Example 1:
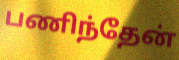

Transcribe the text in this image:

பணிந்தேன்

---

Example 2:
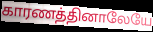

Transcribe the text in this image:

காரணத்தினாலேயே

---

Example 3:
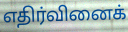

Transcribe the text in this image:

எதிர்வினைக்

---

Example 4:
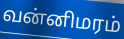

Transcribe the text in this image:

வன்னிமரம்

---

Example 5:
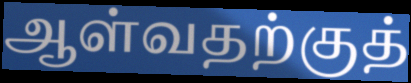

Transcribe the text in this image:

ஆள்வதற்குத்